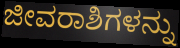
ಜೀವರಾಶಿಗಳನ್ನು